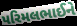
પરિમલભાઈને